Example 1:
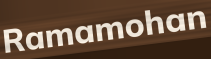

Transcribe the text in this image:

Ramamohan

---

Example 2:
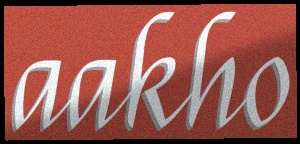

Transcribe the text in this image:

aakho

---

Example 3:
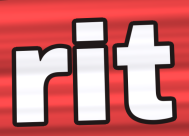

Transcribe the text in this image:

rit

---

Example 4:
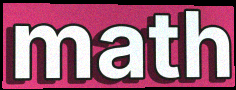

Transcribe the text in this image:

math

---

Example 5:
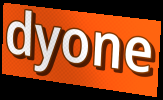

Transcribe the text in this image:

dyone